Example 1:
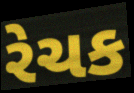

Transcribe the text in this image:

રેચક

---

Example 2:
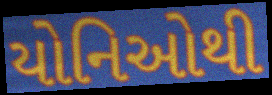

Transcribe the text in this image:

યોનિઓથી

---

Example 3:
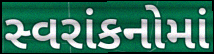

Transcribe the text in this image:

સ્વરાંકનોમાં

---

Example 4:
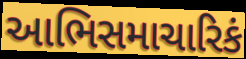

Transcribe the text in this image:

આભિસમાચારિકં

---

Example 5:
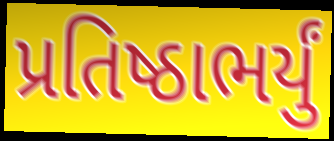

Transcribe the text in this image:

પ્રતિષ્ઠાભર્યું